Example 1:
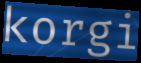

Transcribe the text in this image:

korgi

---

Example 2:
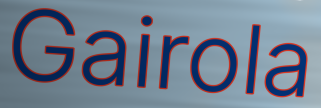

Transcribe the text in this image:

Gairola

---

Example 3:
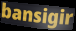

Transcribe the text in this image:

bansigir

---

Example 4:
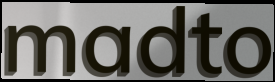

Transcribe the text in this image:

madto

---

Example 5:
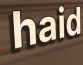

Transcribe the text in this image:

haid